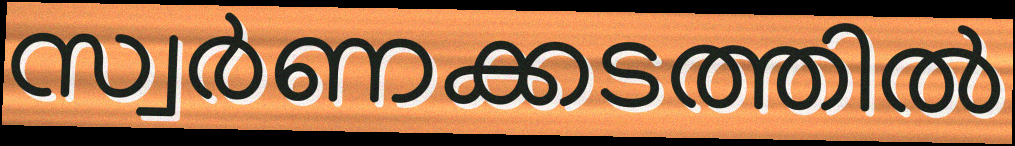
സ്വർണക്കടത്തിൽ